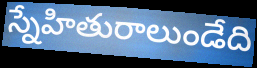
స్నేహితురాలుండేది